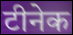
टीनेक